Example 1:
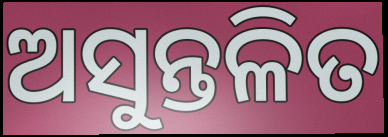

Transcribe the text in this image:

ଅସୁନ୍ତଳିତ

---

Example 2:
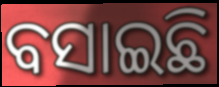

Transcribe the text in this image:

ବସାଇଛି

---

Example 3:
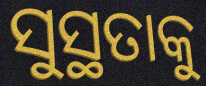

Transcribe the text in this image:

ସୁସ୍ଥତାକୁ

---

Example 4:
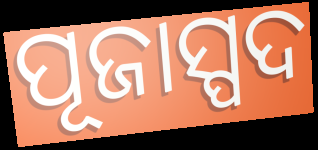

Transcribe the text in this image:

ପୂଜାସ୍ପଦ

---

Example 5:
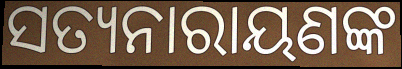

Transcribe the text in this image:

ସତ୍ୟନାରାୟଣଙ୍କ